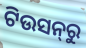
ଟିଉସନ୍‌ରୁ